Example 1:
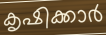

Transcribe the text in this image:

കൃഷിക്കാർ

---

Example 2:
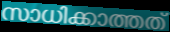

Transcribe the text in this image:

സാധിക്കാത്തത്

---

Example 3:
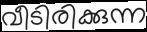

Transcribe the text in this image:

വീടിരിക്കുന്ന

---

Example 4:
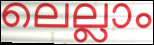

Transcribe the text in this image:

ലെല്ലാം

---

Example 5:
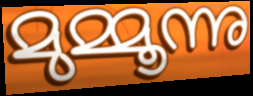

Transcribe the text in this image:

മുമ്മൂന്നു